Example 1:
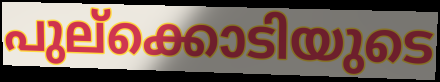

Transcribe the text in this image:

പുല്ക്കൊടിയുടെ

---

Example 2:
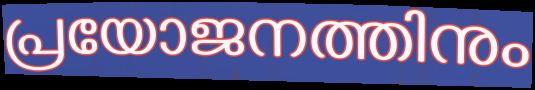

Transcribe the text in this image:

പ്രയോജനത്തിനും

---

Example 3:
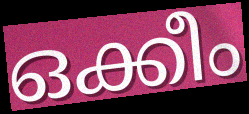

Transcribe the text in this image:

ഒക്കീം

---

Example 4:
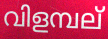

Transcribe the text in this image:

വിളമ്പല്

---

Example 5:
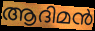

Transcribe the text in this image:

ആദിമൻ